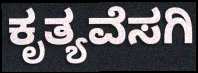
ಕೃತ್ಯವೆಸಗಿ